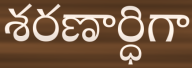
శరణార్ధిగా